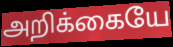
அறிக்கையே